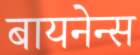
बायनेन्स